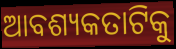
ଆବଶ୍ୟକତାଟିକୁ